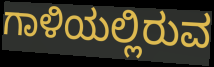
ಗಾಳಿಯಲ್ಲಿರುವ